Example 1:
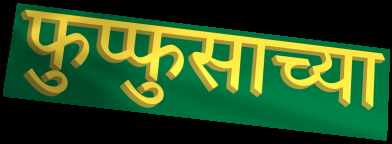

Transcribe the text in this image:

फुप्फुसाच्या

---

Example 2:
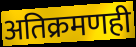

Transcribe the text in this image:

अतिक्रमणही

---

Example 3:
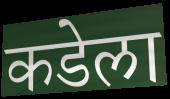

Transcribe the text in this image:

कडेला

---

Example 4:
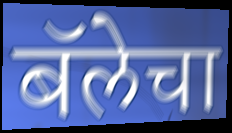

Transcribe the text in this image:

बॅलेचा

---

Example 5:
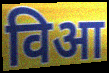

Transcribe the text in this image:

विआ